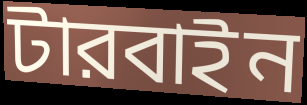
টারবাইন